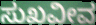
ಸುಖವೀವ